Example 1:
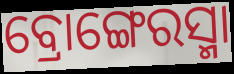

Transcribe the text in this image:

ବ୍ରୋଙ୍ଗେରସ୍ମା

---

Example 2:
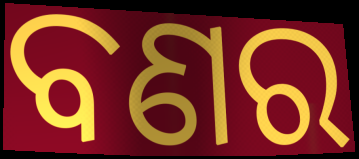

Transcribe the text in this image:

ବଣର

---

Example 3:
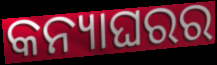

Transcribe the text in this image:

କନ୍ୟାଘରର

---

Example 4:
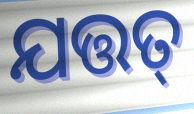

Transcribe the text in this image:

ଯତ୍ତତ୍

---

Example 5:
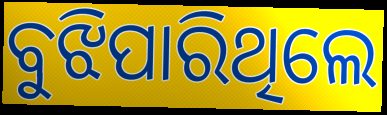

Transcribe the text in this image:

ବୁଝିପାରିଥିଲେ